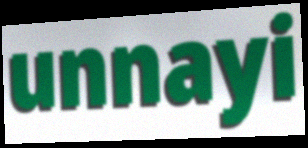
unnayi